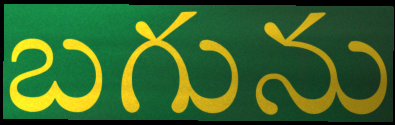
బగును